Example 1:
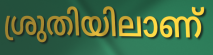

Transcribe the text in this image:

ശ്രുതിയിലാണ്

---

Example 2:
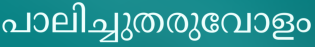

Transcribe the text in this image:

പാലിച്ചുതരുവോളം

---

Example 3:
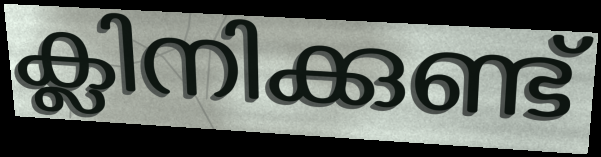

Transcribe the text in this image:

ക്ലിനിക്കുണ്ട്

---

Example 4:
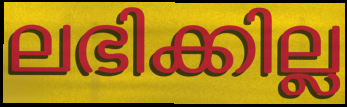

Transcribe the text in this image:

ലഭിക്കില്ല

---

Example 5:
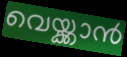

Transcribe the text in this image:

വെയ്ക്കാൻ